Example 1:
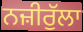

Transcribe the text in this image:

ਨਜ਼ੀਰੁੱਲਾ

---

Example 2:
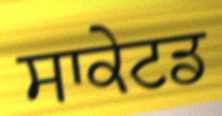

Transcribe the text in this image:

ਸਾਕੇਟਡ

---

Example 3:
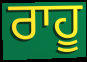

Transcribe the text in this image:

ਰਾਹੂ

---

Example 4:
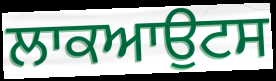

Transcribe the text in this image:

ਲਾਕਆਉਟਸ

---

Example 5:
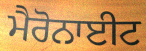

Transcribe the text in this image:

ਮੈਰੋਨਾਈਟ